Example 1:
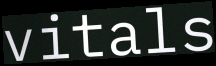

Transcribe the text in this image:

vitals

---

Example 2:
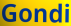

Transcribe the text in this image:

Gondi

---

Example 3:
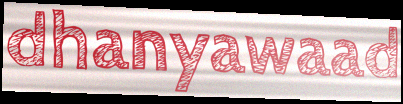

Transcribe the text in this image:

dhanyawaad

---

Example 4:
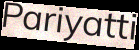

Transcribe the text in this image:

Pariyatti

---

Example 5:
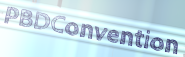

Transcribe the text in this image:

PBDConvention